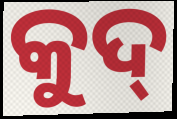
କୁଦ୍